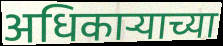
अधिकाऱ्याच्या